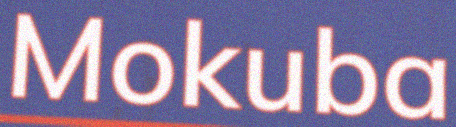
Mokuba